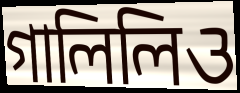
গালিলিও